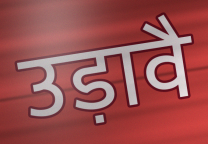
उड़ावै